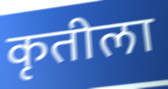
कृतीला